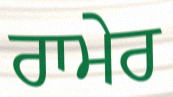
ਰਾਮੇਰ